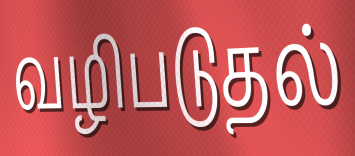
வழிபடுதல்